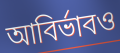
আবির্ভাবও